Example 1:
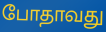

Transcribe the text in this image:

போதாவது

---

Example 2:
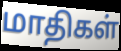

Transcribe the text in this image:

மாதிகள்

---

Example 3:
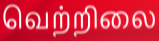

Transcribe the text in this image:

வெற்றிலை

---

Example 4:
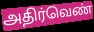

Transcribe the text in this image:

அதிர்வெண்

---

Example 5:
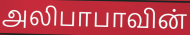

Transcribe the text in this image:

அலிபாபாவின்